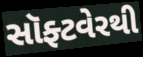
સૉફ્ટવેરથી